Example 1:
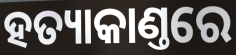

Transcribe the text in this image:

ହତ୍ୟାକାଣ୍ତରେ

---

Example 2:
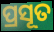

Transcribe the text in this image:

ପ୍ରସୂତ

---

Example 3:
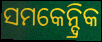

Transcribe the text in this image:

ସମକେନ୍ଦ୍ରିକ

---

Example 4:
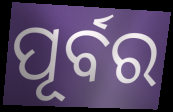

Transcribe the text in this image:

ପୂର୍ବର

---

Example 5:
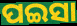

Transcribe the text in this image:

ପଇସା